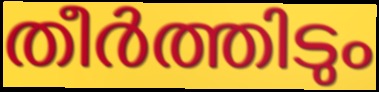
തീർത്തിടും